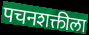
पचनशक्तीला